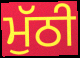
ਮੁੱਠੀ